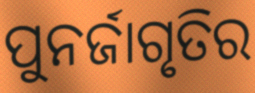
ପୁନର୍ଜାଗୃତିର